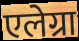
एलेग्रा